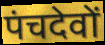
पंचदेवों